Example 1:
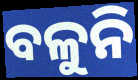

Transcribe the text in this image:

ବଳୁନି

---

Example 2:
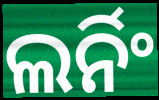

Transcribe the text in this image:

ଲର୍ନିଂ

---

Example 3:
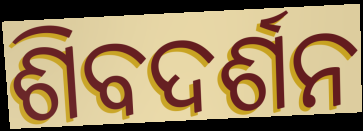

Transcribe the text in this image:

ଶିବଦର୍ଶନ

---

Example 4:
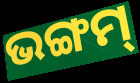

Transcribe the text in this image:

ଭଙ୍ଗମ୍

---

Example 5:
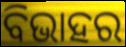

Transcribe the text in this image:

ବିଭାହର